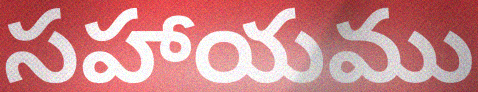
సహాయము